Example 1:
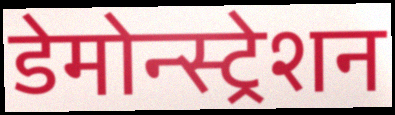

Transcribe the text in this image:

डेमोन्स्ट्रेशन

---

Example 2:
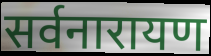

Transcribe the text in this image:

सर्वनारायण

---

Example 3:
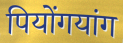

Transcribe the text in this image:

पियोंगयांग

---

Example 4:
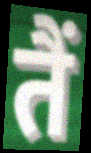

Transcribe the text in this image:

तैं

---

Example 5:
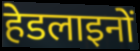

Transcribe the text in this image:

हेडलाइनों